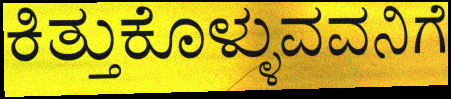
ಕಿತ್ತುಕೊಳ್ಳುವವನಿಗೆ